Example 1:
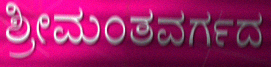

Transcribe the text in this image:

ಶ್ರೀಮಂತವರ್ಗದ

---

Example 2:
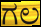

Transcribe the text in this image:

ಗಲ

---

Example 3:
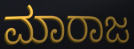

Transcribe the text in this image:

ಮಾರಾಜ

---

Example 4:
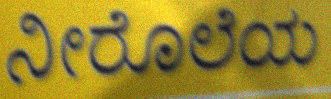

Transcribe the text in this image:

ನೀರೊಲೆಯ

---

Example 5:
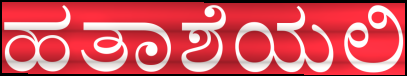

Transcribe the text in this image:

ಹತಾಶೆಯಲಿ